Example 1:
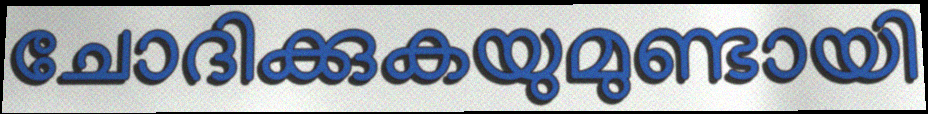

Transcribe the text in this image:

ചോദിക്കുകയുമുണ്ടായി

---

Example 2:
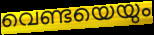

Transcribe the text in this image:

വെണ്ടയെയും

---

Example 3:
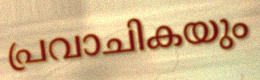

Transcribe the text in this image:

പ്രവാചികയും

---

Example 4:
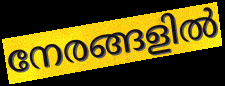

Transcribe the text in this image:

നേരങ്ങളിൽ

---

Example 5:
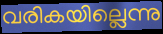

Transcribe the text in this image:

വരികയില്ലെന്നു